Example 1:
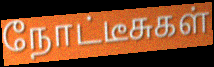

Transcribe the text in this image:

நோட்டீசுகள்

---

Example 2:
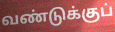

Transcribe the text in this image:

வண்டுக்குப்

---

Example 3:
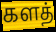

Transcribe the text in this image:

களத்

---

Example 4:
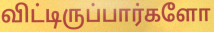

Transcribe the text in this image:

விட்டிருப்பார்களோ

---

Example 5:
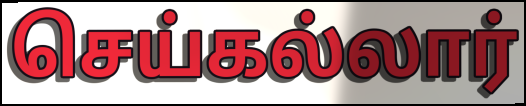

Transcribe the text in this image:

செய்கல்லார்